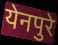
येनपुरे